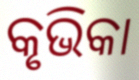
କୃଭିକା